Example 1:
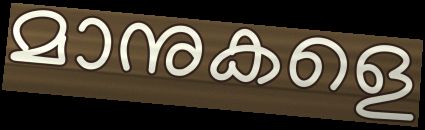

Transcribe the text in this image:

മാനുകളെ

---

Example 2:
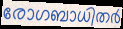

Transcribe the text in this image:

രോഗബാധിതർ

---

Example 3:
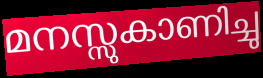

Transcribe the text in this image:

മനസ്സുകാണിച്ചു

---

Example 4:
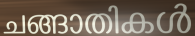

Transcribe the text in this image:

ചങ്ങാതികൾ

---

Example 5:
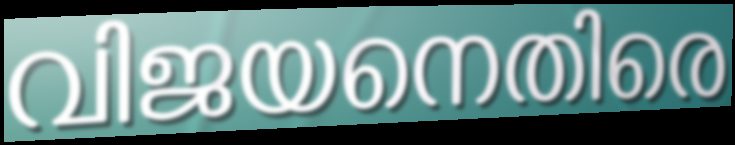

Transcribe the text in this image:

വിജയനെതിരെ